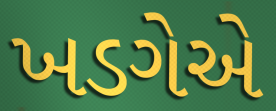
ખડગેએ